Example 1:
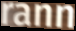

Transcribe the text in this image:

rann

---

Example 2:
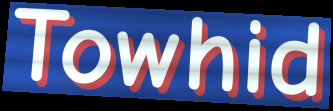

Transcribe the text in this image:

Towhid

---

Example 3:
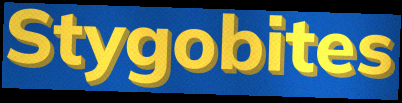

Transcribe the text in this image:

Stygobites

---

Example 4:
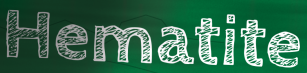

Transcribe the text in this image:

Hematite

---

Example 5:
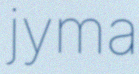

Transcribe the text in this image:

jyma